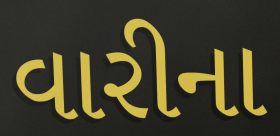
વારીના